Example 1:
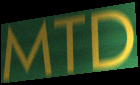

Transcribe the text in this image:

MTD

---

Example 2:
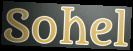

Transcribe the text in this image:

Sohel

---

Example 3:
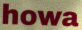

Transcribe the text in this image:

howa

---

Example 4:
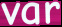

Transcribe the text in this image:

var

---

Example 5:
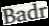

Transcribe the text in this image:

Badr